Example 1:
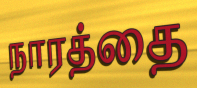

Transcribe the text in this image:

நாரத்தை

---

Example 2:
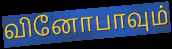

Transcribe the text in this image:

வினோபாவும்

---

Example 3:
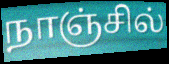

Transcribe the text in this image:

நாஞ்சில்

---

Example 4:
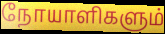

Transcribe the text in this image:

நோயாளிகளும்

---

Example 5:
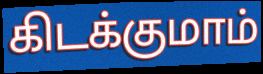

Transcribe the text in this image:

கிடக்குமாம்